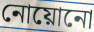
নোয়োনো